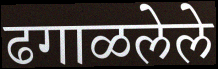
ढगाळलेले